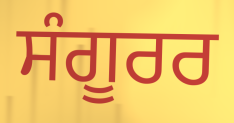
ਸੰਗੂਰਰ